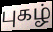
புகழ்